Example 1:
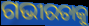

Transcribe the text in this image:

ଗଭୀରତାକୁ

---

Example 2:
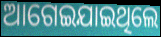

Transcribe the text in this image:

ଆଗେଇଯାଇଥିଲେ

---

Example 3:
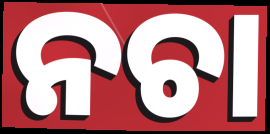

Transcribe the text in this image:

ନଚା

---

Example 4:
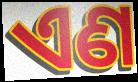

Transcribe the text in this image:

ଏଣ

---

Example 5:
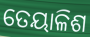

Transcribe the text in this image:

ତେୟାଳିଶ